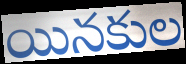
యినకుల